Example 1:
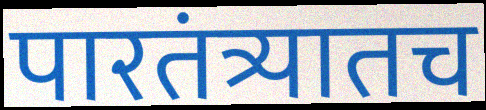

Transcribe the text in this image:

पारतंत्र्यातच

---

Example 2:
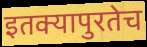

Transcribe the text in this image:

इतक्यापुरतेच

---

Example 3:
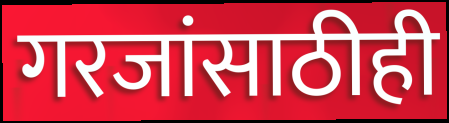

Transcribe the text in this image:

गरजांसाठीही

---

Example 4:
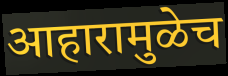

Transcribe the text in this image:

आहारामुळेच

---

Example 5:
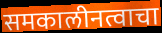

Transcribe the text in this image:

समकालीनत्वाचा